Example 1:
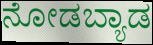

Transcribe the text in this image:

ನೋಡಬ್ಯಾಡ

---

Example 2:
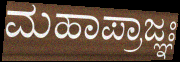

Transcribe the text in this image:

ಮಹಾಪ್ರಾಜ್ಞಃ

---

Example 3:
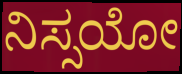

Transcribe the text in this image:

ನಿಸ್ಸಯೋ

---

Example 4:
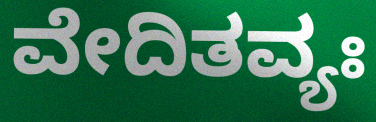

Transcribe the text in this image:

ವೇದಿತವ್ಯಃ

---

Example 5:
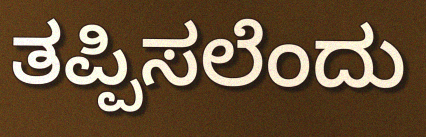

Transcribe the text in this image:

ತಪ್ಪಿಸಲೆಂದು